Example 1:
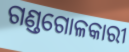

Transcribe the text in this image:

ଗଣ୍ଡଗୋଳକାରୀ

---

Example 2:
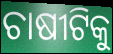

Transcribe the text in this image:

ଚାଷୀଟିକୁ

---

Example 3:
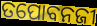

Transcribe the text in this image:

ତପୋବନଜୀ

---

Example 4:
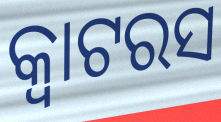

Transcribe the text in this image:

କ୍ୱାଟରସ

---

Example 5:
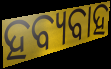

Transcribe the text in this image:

ହବ୍ୟବାହ